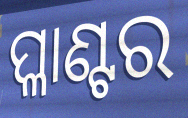
ପ୍ଳାଣ୍ଟର